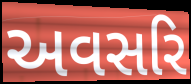
અવસરિ